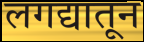
लगद्यातून